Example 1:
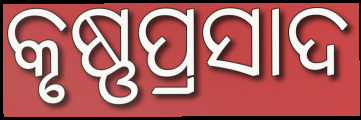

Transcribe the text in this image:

କୃଷ୍ଣପ୍ରସାଦ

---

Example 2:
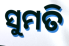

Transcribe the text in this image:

ସୁମତି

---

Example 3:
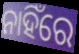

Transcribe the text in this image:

ନାହିଁରେ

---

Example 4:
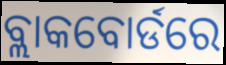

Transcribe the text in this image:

ବ୍ଲାକବୋର୍ଡରେ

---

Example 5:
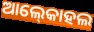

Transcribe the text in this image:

ଆଲ୍‍କୋହଲ